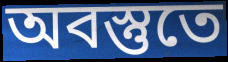
অবস্তুতে